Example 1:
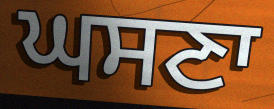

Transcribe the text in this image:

ਘਸਣਾ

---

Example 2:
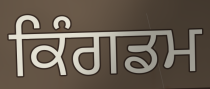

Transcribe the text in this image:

ਕਿੰਗਡਮ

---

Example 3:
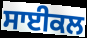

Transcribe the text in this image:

ਸਾਈਕਲ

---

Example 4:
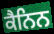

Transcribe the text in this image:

ਕੈਨਿਨ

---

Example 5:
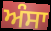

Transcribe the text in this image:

ਅੰਸਾ